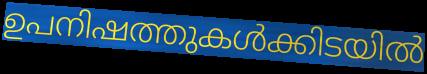
ഉപനിഷത്തുകൾക്കിടയിൽ